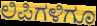
ಲಿಪಿಗಳಿಗೂ